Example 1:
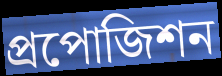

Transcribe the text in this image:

প্রপোজিশন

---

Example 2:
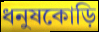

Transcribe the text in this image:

ধনুষকোড়ি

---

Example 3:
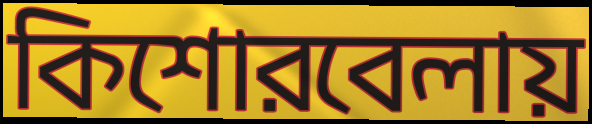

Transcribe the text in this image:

কিশোরবেলায়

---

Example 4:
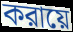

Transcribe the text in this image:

করায়ে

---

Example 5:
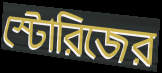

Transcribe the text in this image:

স্টোরিজের